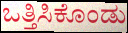
ಒತ್ತಿಸಿಕೊಂಡು